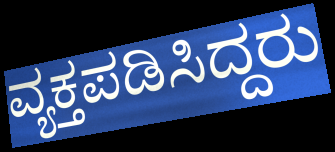
ವ್ಯಕ್ತಪಡಿಸಿದ್ದರು